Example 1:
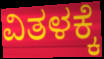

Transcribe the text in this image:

ವಿತಳಕ್ಕೆ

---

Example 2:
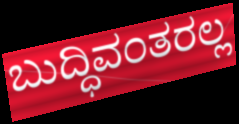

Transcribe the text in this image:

ಬುದ್ಧಿವಂತರಲ್ಲ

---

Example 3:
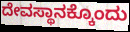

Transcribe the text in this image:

ದೇವಸ್ಥಾನಕ್ಕೊಂದು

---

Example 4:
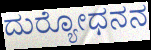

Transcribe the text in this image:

ದುರ‍್ಯೋಧನನ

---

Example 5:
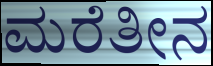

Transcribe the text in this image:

ಮರೆತೀನ